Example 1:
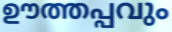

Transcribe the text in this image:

ഊത്തപ്പവും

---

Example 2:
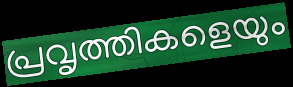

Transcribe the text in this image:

പ്രവൃത്തികളെയും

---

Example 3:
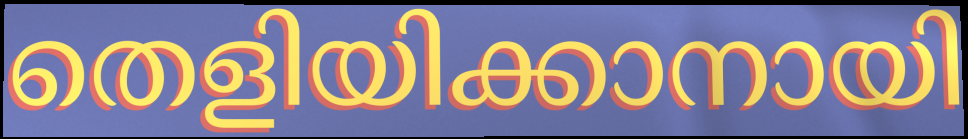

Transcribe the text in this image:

തെളിയിക്കാനായി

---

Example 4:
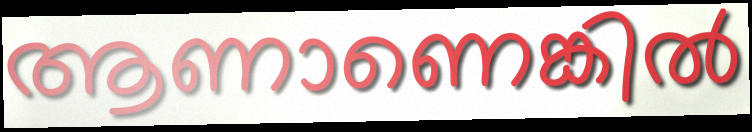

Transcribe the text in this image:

ആണാണെങ്കിൽ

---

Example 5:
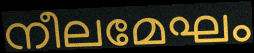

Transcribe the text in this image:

നീലമേഘം